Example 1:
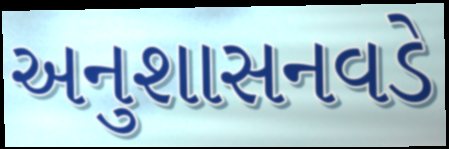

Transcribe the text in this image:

અનુશાસનવડે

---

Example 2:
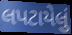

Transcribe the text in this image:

લપટાયેલું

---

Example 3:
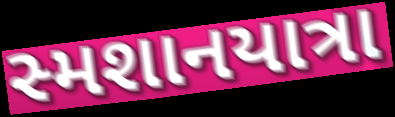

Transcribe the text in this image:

સ્મશાનયાત્રા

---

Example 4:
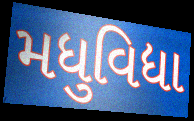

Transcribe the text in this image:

મધુવિદ્યા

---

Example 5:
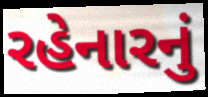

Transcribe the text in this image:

રહેનારનું